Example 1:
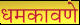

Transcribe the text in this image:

धमकावणे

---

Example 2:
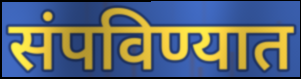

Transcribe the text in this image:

संपविण्यात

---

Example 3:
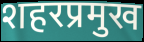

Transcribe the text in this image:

शहरप्रमुख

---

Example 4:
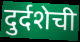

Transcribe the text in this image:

दुर्दशेची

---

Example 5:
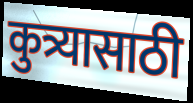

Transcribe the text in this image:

कुत्र्यासाठी